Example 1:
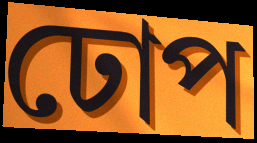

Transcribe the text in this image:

ঢোপ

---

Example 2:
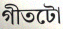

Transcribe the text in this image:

গীতটো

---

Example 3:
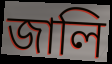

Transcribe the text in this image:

জালি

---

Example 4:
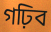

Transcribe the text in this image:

গঢ়িব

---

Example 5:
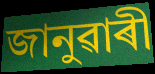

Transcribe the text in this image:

জানুৱাৰী